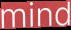
mind